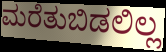
ಮರೆತುಬಿಡಲಿಲ್ಲ